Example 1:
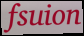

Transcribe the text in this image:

fsuion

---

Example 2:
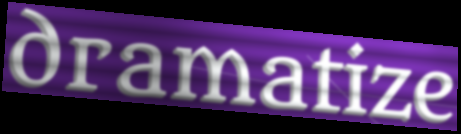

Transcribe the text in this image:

dramatize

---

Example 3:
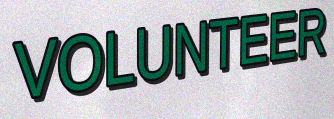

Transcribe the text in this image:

VOLUNTEER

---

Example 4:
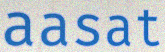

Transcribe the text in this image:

aasat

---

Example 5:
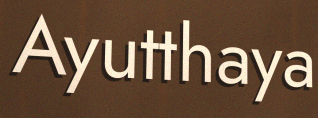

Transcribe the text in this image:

Ayutthaya